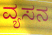
ವ್ಯಸನ